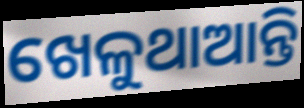
ଖେଳୁଥାଆନ୍ତି